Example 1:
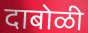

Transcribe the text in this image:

दाबोळी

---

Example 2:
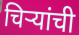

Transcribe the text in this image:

चिऱ्यांची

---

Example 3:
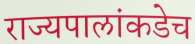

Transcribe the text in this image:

राज्यपालांकडेच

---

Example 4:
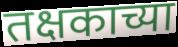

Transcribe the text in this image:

तक्षकाच्या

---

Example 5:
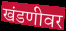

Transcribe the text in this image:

खंडणीवर